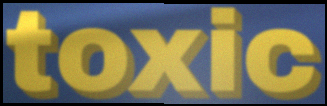
toxic